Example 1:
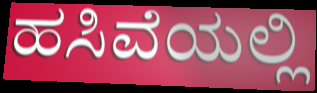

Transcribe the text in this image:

ಹಸಿವೆಯಲ್ಲಿ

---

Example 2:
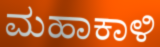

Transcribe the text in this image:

ಮಹಾಕಾಳಿ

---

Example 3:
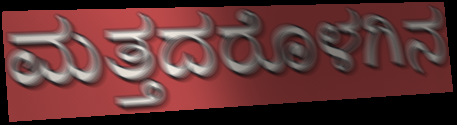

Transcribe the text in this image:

ಮತ್ತದರೊಳಗಿನ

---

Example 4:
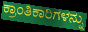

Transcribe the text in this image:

ಕ್ರಾಂತಿಕಾರಿಗಳನ್ನು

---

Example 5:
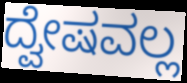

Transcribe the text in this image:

ದ್ವೇಷವಲ್ಲ